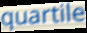
quartile